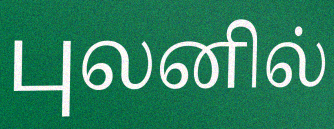
புலனில்